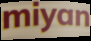
miyan